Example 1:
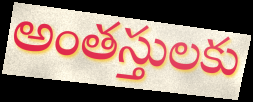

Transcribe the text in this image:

అంతస్తులకు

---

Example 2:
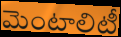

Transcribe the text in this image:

మెంటాలిటీ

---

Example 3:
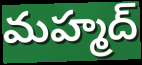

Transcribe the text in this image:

మహ్మద్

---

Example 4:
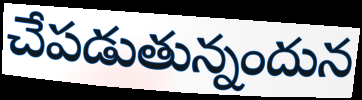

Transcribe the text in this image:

చేపడుతున్నందున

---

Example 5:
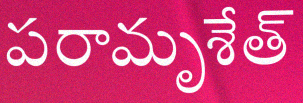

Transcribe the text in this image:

పరామృశేత్